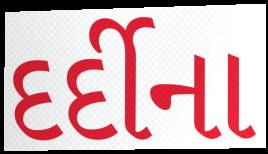
દર્દીના